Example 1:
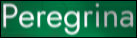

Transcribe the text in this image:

Peregrina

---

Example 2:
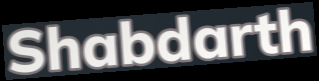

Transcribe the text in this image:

Shabdarth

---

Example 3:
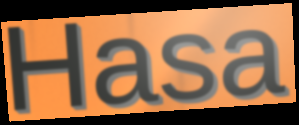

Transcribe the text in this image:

Hasa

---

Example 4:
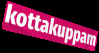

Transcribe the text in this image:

kottakuppam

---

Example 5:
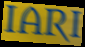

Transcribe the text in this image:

IARI